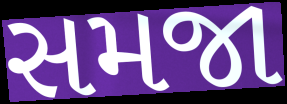
સમજા